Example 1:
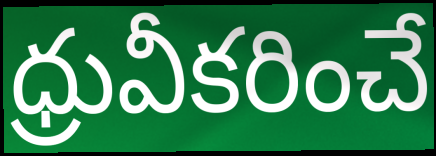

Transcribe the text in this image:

ధ్రువీకరించే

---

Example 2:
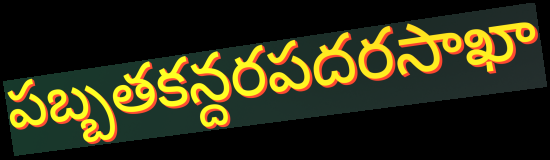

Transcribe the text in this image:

పబ్బతకన్దరపదరసాఖా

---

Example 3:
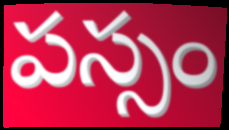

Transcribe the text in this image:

పస్సం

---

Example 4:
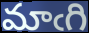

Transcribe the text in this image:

మాఁగి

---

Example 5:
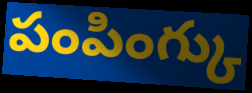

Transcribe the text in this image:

పంపింగ్కు